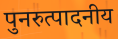
पुनरुत्पादनीय